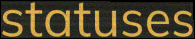
statuses